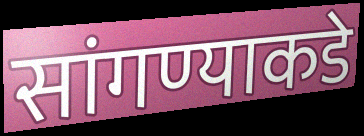
सांगण्याकडे